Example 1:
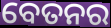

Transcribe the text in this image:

ବେତନର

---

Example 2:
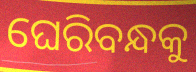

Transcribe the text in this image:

ଘେରିବନ୍ଧକୁ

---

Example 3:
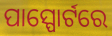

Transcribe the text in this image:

ପାସ୍ପୋର୍ଟରେ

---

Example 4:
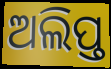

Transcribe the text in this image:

ଅଲିପ୍ତ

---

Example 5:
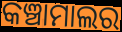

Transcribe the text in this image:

କଞ୍ଚାମାଲର